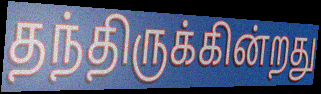
தந்திருக்கின்றது